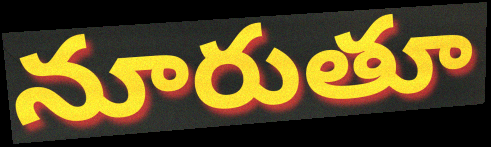
నూరుతూ